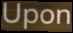
Upon